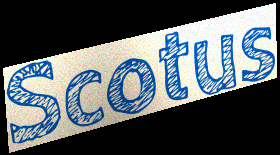
Scotus